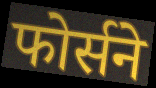
फोर्सने